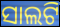
ସାଲଟି